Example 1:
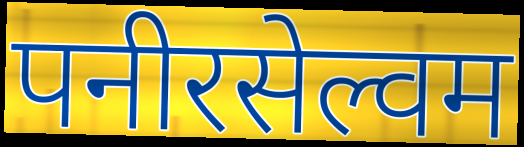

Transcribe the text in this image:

पनीरसेल्वम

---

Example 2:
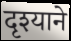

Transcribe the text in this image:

दृश्याने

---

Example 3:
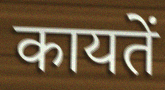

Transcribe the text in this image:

कायतें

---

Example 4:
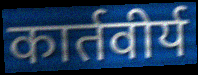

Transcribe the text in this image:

कार्तवीर्य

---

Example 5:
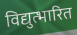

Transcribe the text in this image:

विद्युत्भारित